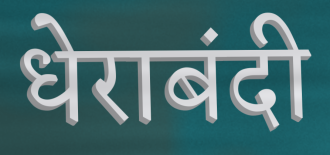
धेराबंदी